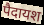
पैदायश